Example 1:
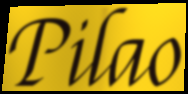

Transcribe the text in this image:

Pilao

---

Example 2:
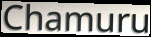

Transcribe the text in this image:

Chamuru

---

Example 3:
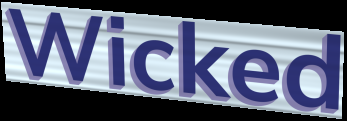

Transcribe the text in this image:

Wicked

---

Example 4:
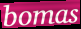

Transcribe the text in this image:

bomas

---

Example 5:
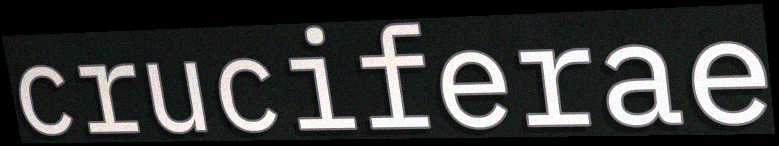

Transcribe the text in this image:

cruciferae